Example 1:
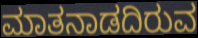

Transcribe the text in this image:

ಮಾತನಾಡದಿರುವ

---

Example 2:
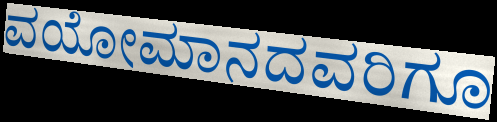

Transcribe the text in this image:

ವಯೋಮಾನದವರಿಗೂ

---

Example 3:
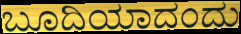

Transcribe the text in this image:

ಬೂದಿಯಾದಂದು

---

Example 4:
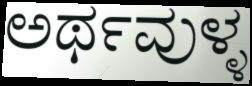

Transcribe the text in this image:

ಅರ್ಥವುಳ್ಳ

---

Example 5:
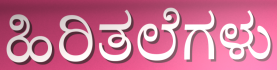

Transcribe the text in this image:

ಹಿರಿತಲೆಗಳು